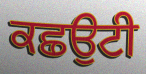
ਕਛਉਟੀ